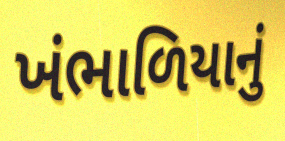
ખંભાળિયાનું